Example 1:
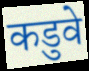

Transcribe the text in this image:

कडुवे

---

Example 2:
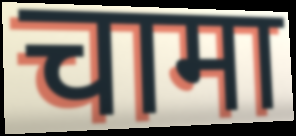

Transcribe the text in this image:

चामा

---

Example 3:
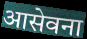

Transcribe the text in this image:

आसेवना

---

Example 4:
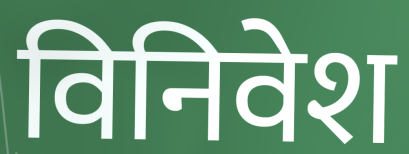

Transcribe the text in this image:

विनिवेश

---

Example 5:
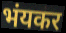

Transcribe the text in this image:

भंयकर